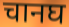
चानघ